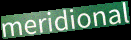
meridional